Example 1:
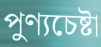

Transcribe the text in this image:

পুণ্যচেষ্টা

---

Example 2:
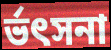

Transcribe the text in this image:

র্ভৎসনা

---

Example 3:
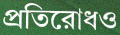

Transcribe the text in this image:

প্রতিরোধও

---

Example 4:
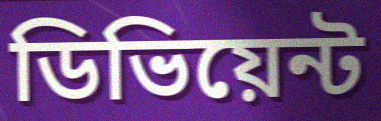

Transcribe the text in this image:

ডিভিয়েন্ট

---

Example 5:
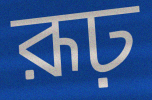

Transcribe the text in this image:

রূঢ়